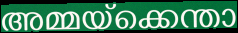
അമ്മയ്‌ക്കെന്താ